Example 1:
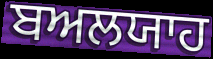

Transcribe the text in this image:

ਬਅਲਯਾਹ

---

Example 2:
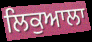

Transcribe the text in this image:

ਲਿਕੁਆਲਾ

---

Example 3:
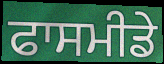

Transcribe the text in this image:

ਫਾਸਮੀਡੇ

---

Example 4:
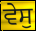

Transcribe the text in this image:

ਵੇਸੁ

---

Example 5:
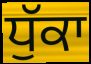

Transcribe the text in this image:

ਧੁੱਕਾ